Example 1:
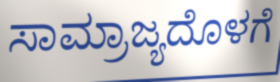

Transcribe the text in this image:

ಸಾಮ್ರಾಜ್ಯದೊಳಗೆ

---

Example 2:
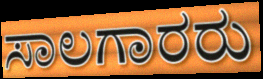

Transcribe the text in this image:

ಸಾಲಗಾರರು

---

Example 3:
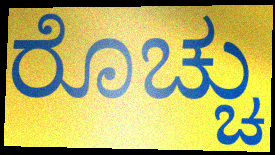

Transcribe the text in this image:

ರೊಚ್ಚು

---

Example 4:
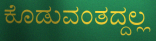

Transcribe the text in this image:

ಕೊಡುವಂತದ್ದಲ್ಲ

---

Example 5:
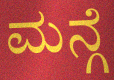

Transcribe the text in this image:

ಮನ್ಗೆ